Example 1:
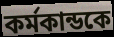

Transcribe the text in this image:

কর্মকান্ডকে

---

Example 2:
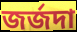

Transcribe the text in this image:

জর্জদা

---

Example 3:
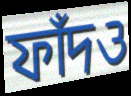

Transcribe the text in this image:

ফাঁদও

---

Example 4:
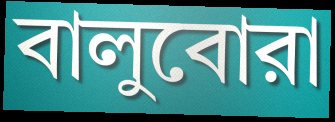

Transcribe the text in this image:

বালুবোরা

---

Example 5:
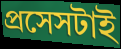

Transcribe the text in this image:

প্রসেসটাই